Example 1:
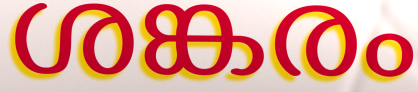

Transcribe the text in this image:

ശങ്കരം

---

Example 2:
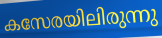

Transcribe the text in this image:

കസേരയിലിരുന്നു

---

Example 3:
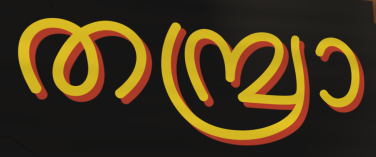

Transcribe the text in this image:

തമ്പ്രാ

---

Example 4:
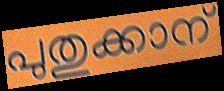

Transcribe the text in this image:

പുതുക്കാന്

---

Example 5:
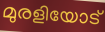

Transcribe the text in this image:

മുരളിയോട്